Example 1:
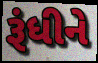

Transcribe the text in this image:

રૂંધીને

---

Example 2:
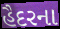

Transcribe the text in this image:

હૈદરના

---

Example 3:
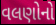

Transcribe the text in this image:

વલણોનો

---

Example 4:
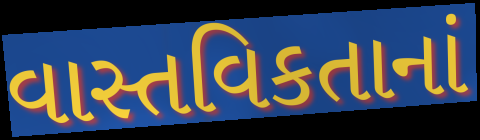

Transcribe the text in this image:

વાસ્તવિકતાનાં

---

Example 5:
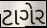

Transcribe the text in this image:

ટાગેર